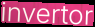
invertor